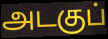
அடகுப்